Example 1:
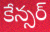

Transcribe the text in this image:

కేన్సర్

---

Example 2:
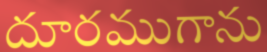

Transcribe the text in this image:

దూరముగాను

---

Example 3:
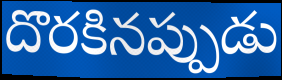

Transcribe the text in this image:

దొరకినప్పుడు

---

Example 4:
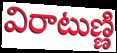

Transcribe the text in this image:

విరాటుణ్ణి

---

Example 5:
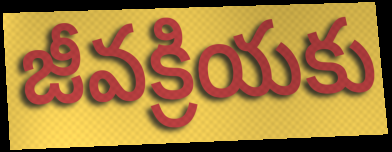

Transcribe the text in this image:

జీవక్రియకు